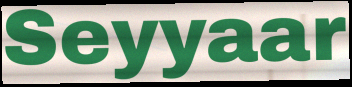
Seyyaar